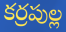
కర్రపుల్ల